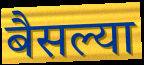
बैसल्या